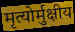
मृत्‍योर्मुक्षीय